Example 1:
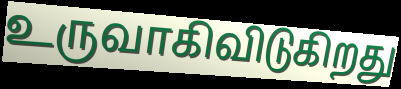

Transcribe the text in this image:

உருவாகிவிடுகிறது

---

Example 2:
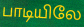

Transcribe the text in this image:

பாடியிலே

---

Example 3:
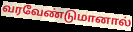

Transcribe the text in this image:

வரவேண்டுமானால்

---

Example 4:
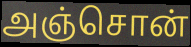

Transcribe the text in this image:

அஞ்சொன்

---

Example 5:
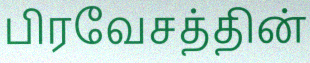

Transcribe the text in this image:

பிரவேசத்தின்